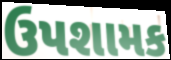
ઉપશામક